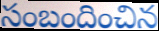
సంబందించిన